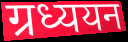
ग्रध्ययन